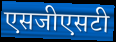
एसजीएसटी